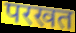
परखत